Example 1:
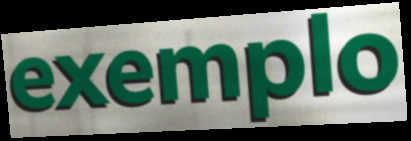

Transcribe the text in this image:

exemplo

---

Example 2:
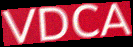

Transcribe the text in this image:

VDCA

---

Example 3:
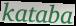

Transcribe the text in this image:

kataba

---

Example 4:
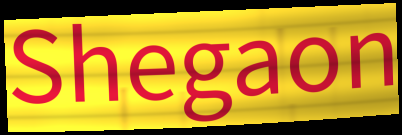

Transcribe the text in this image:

Shegaon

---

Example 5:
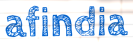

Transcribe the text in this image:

afindia